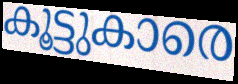
കൂട്ടുകാരെ